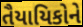
તૈયાયિકોને